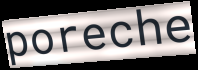
poreche